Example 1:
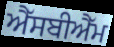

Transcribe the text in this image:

ਐੱਸਬੀਐੱਮ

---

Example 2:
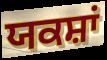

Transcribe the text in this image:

ਯਕਸ਼ਾਂ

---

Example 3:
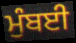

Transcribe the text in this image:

ਮੁੰਬਈ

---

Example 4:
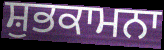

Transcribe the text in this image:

ਸ਼ੁਭਕਾਮਨਾ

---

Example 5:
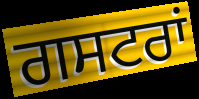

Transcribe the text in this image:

ਗਸਟਰਾਂ